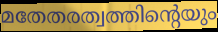
മതേതരത്വത്തിന്റെയും